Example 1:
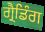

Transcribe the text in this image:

ਗ੍ਰੈਡਿੰਗ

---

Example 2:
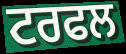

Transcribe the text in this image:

ਟਰਫਲ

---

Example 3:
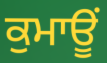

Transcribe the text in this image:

ਕੁਮਾਊਂ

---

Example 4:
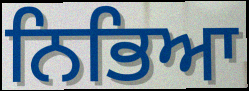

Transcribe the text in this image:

ਨਿਭਿਆ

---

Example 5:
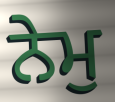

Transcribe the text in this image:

ਨੇਮੁ